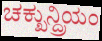
ಚಕ್ಖುನ್ದ್ರಿಯಂ